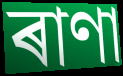
ৰাণা